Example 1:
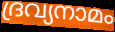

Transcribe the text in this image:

ദ്രവ്യനാമം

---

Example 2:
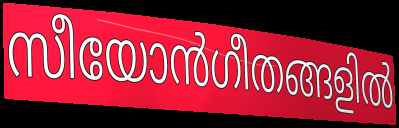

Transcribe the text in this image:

സീയോൻഗീതങ്ങളിൽ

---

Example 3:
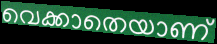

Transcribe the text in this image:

വെക്കാതെയാണ്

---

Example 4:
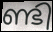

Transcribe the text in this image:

ണ്ടി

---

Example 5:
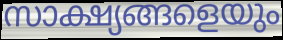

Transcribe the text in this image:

സാക്ഷ്യങ്ങളെയും